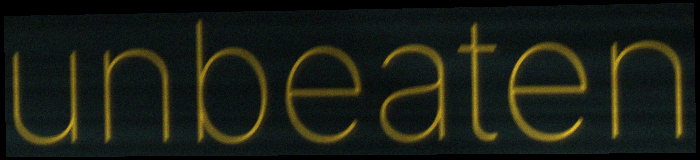
unbeaten